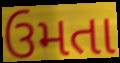
ઉમતા